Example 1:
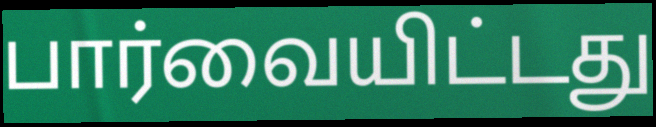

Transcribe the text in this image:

பார்வையிட்டது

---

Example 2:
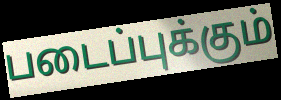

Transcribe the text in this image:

படைப்புக்கும்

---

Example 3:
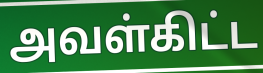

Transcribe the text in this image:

அவள்கிட்ட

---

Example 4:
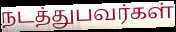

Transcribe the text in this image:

நடத்துபவர்கள்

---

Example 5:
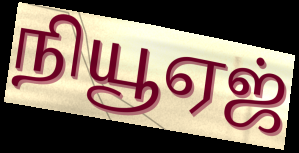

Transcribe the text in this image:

நியூஏஜ்